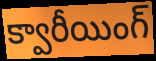
క్వారీయింగ్